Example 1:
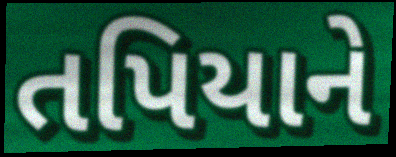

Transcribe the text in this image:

તપિયાને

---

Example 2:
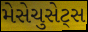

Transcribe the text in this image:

મેસેચુસેટ્સ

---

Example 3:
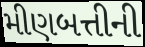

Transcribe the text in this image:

મીણબત્તીની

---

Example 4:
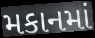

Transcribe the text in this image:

મકાનમાં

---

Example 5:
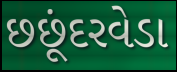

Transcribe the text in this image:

છછૂંદરવેડા